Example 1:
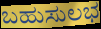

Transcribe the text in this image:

ಬಹುಸುಲಭ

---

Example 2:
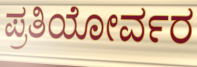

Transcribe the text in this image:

ಪ್ರತಿಯೋರ್ವರ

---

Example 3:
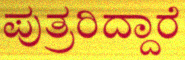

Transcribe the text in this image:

ಪುತ್ರರಿದ್ದಾರೆ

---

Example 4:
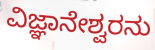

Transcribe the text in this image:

ವಿಜ್ಞಾನೇಶ್ವರನು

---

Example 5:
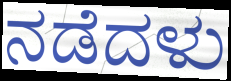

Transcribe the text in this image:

ನಡೆದಳು